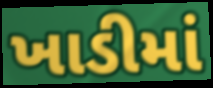
ખાડીમાં